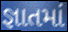
જ્ઞાતમાં